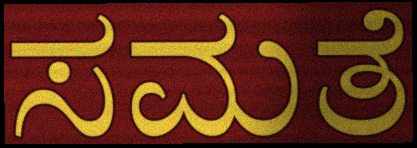
ಸಮತೆ